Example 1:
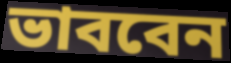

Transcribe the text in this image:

ভাববেন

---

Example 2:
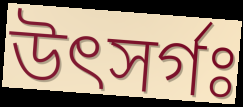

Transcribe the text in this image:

উৎসর্গঃ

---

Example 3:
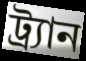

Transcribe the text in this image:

ট্র্যান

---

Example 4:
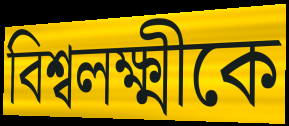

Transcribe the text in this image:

বিশ্বলক্ষ্মীকে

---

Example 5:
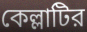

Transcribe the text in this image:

কেল্লাটির